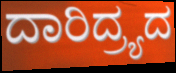
ದಾರಿದ್ರ್ಯದ